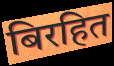
बिरहित